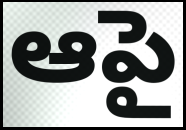
ఆపై